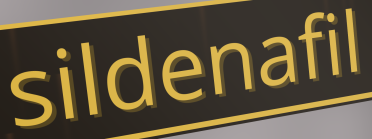
sildenafil